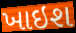
ખાઇશ